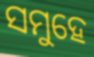
ସମୁହେ